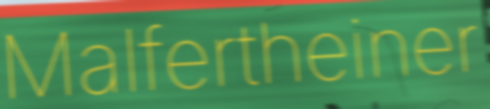
Malfertheiner